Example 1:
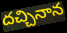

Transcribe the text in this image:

దచ్చినాన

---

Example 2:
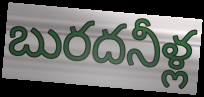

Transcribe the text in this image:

బురదనీళ్ల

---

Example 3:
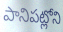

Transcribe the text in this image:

పానిపట్లోని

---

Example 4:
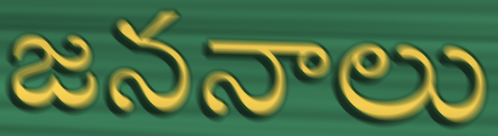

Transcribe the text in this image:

జననాలు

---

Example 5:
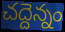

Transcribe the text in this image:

చద్దెన్నం